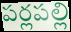
పర్లపల్లి